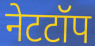
नेटटॉप